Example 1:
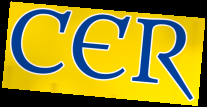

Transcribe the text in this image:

CER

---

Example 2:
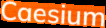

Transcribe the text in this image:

Caesium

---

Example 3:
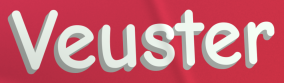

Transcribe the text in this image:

Veuster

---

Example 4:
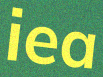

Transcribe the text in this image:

iea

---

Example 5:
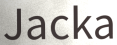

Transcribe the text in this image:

Jacka